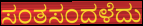
ಸಂತಸಂದಳೆದು